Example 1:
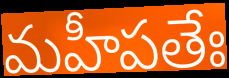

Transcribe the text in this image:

మహీపతేః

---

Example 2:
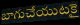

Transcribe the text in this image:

బాగుచేయుటకై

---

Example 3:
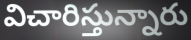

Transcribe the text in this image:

విచారిస్తున్నారు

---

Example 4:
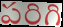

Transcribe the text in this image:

పరిగి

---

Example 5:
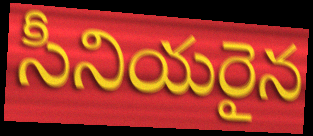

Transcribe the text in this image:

సీనియరైన